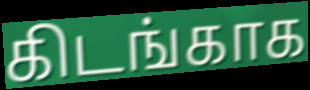
கிடங்காக